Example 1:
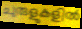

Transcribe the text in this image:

ചുരുളുകളിൽ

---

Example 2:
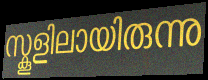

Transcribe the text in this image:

സ്കൂളിലായിരുന്നു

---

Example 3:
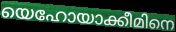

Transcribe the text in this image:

യെഹോയാക്കീമിനെ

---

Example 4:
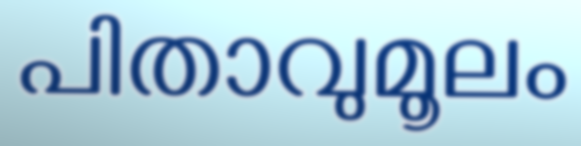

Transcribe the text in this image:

പിതാവുമൂലം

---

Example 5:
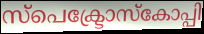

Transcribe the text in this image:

സ്പെക്ട്രോസ്കോപ്പി